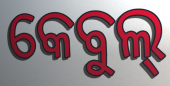
କେବୁଲ୍